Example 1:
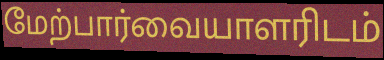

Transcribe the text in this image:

மேற்பார்வையாளரிடம்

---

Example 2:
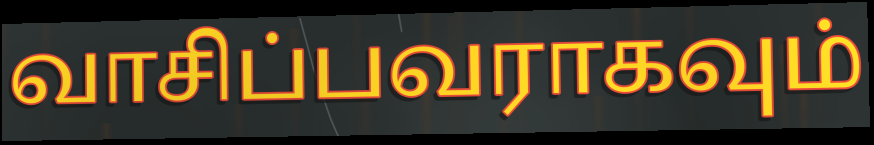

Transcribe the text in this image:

வாசிப்பவராகவும்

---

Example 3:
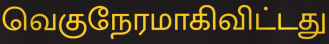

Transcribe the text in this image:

வெகுநேரமாகிவிட்டது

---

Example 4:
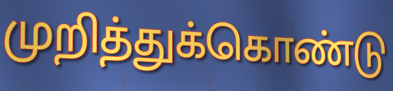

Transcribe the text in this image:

முறித்துக்கொண்டு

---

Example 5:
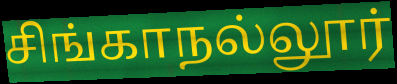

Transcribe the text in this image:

சிங்காநல்லூர்